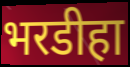
भरडीहा